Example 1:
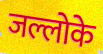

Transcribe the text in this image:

जल्लोके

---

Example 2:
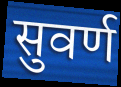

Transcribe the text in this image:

सुवर्ण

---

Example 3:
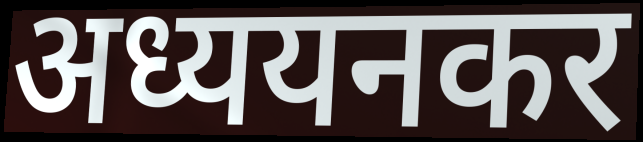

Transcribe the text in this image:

अध्ययनकर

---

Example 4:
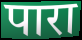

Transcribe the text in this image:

पारा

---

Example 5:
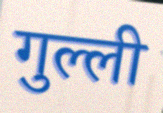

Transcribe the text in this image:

गुल्ली